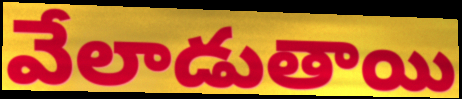
వేలాడుతాయి